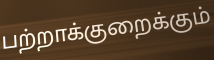
பற்றாக்குறைக்கும்